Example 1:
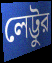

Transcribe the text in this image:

লেট্টুর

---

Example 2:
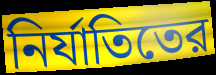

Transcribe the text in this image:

নির্যাতিতের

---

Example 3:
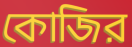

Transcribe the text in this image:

কোজির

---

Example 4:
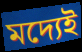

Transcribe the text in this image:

মদ্যেই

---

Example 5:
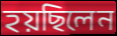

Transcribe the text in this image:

হয়ছিলেন